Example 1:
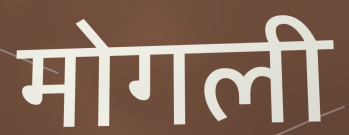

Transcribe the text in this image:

मोगली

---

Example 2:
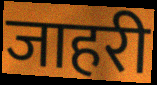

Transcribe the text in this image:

जाहरी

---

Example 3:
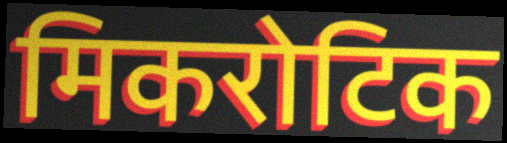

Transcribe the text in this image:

मिकरोटिक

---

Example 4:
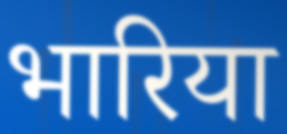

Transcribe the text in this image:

भारिया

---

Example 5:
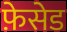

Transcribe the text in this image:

फ़ेसेड